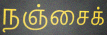
நஞ்சைக்